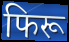
फिरू